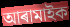
আৰামাইক